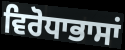
ਵਿਰੋਧਾਭਾਸਾਂ